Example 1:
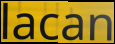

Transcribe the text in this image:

lacan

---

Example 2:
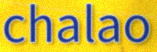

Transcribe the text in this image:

chalao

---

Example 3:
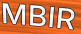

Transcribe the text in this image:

MBIR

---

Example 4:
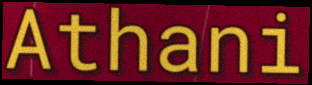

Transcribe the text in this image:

Athani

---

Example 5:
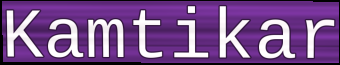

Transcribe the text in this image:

Kamtikar